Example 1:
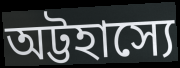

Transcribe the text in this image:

অট্টহাস্যে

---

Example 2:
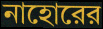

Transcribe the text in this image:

নাহোরের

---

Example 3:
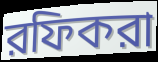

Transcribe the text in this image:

রফিকরা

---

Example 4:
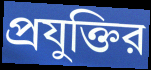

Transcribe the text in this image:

প্রযুক্তির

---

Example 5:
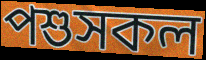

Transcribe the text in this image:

পশুসকল